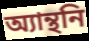
অ্যান্থনি